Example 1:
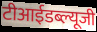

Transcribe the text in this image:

टीआईडब्ल्यूजी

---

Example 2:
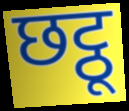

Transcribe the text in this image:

छट्ठू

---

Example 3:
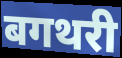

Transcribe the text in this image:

बगथरी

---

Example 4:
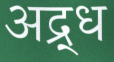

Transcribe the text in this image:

अद्र्ध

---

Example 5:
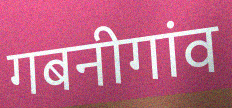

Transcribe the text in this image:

गबनीगांव